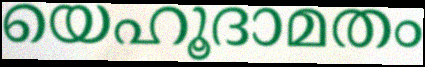
യെഹൂദാമതം